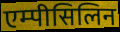
एम्पीसिलिन